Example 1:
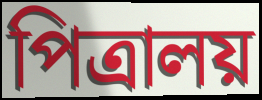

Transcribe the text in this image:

পিত্রালয়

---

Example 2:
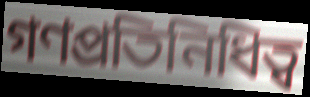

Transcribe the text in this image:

গণপ্রতিনিধিত্ব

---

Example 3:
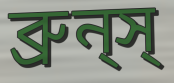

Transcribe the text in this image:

ব্রুন্‌স্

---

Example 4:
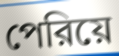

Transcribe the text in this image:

পেরিয়ে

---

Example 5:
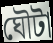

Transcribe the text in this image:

ঘৌটা